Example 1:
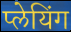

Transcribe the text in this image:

प्लेयिंग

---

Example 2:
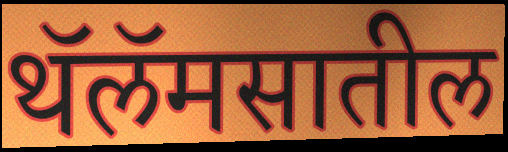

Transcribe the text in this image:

थॅलॅमसातील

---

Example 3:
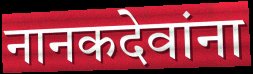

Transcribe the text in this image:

नानकदेवांना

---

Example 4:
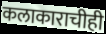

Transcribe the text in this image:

कलाकाराचीही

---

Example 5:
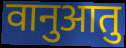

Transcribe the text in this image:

वानुआतु